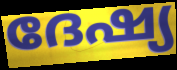
ദേഷ്യ